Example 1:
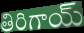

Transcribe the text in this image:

తిరిగాయ్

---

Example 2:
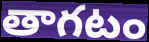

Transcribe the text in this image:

తాగటం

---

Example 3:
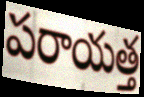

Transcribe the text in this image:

పరాయత్త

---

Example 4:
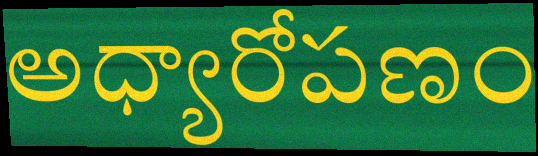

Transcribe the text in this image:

అధ్యారోపణం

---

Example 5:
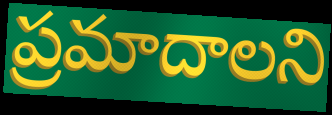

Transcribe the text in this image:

ప్రమాదాలని